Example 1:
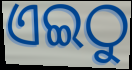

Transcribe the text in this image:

ଏଇଠୁ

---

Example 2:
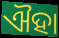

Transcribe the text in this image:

ଐହା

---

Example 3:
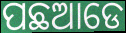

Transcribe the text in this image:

ପଛଆଡେ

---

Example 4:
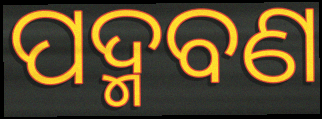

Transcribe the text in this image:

ପଦ୍ମବଣ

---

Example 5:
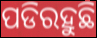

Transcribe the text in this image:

ପଡିରହୁଛି